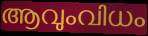
ആവുംവിധം